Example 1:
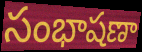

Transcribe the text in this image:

సంభాషణా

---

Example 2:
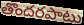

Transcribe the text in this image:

తొందరపాటు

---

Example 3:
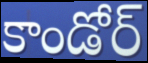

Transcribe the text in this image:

కాండోర్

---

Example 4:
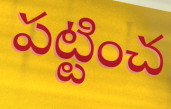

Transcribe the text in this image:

పట్టించ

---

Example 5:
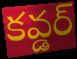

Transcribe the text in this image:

కవ్డర్